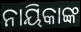
ନାୟିକାଙ୍କ